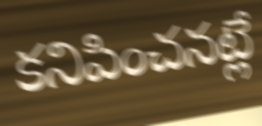
కనిపించనట్లే